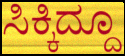
ಸಿಕ್ಕಿದ್ದೂ